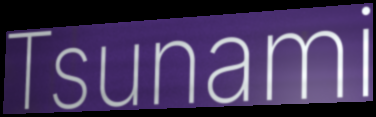
Tsunami